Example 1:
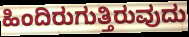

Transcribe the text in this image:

ಹಿಂದಿರುಗುತ್ತಿರುವುದು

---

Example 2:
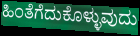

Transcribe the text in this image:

ಹಿಂತೆಗೆದುಕೊಳ್ಳುವುದು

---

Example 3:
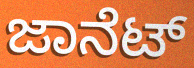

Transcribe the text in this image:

ಜಾನೆಟ್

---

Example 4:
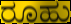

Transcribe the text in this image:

ರೂಹು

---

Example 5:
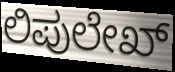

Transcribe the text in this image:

ಲಿಪುಲೇಖ್